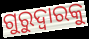
ଗୁରୁଦ୍ୱାରକୁ